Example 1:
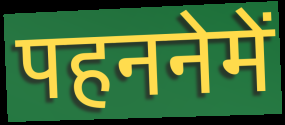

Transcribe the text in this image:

पहननेमें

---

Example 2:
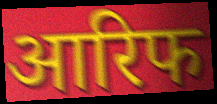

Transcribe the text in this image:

आरिफ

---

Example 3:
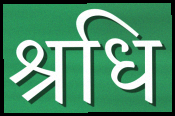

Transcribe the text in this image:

श्रधि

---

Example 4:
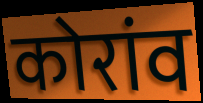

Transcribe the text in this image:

कोरांव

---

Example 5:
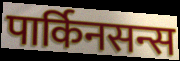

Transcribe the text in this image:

पार्किनसन्स